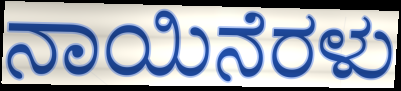
ನಾಯಿನೆರಳು